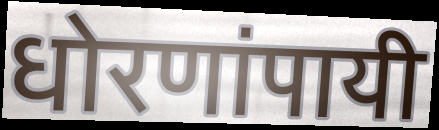
धोरणांपायी